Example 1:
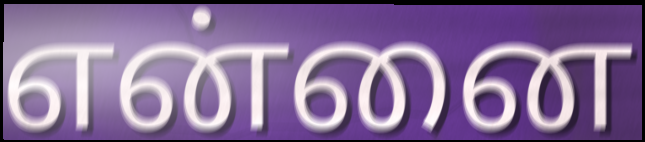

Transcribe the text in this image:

என்னை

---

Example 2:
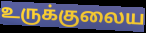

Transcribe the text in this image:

உருக்குலைய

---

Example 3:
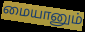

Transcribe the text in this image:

மையானும்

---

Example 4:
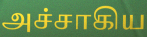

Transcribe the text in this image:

அச்சாகிய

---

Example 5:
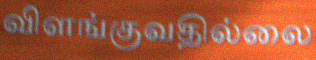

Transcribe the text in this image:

விளங்குவதில்லை